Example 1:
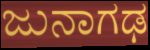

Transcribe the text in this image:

ಜುನಾಗಢ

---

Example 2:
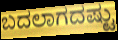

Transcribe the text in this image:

ಬದಲಾಗದಷ್ಟು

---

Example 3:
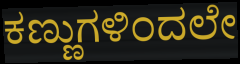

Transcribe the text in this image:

ಕಣ್ಣುಗಳಿಂದಲೇ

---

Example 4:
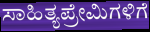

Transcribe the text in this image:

ಸಾಹಿತ್ಯಪ್ರೇಮಿಗಳಿಗೆ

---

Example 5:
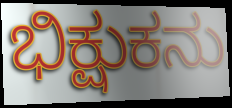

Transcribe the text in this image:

ಭಿಕ್ಷುಕನು